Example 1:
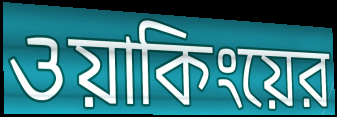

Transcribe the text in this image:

ওয়াকিংয়ের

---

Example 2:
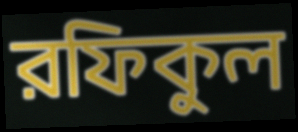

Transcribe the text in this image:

রফিকুল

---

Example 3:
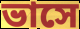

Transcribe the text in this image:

ভাসে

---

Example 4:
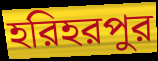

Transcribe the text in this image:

হরিহরপুর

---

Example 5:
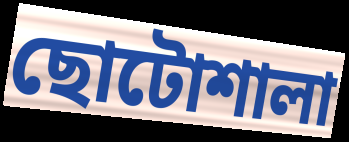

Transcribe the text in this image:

ছোটোশালা